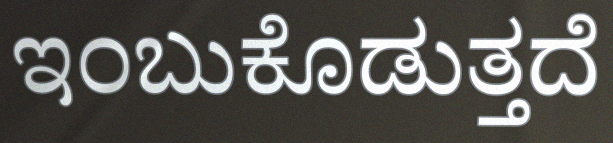
ಇಂಬುಕೊಡುತ್ತದೆ